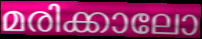
മരിക്കാലോ